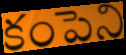
కంపెని